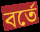
বর্তে